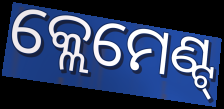
କ୍ଲେମେଣ୍ଟ୍